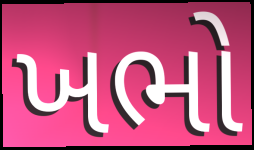
ખભો